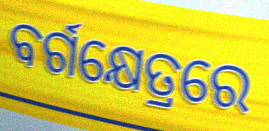
ବର୍ଗକ୍ଷେତ୍ରରେ